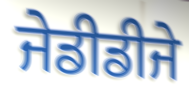
ਜੇਡੀਡੀਜੇ